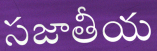
సజాతీయ